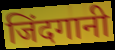
जिंदगानी